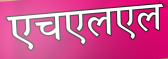
एचएलएल